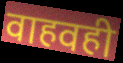
वाहवही